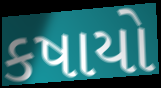
કષાયો